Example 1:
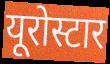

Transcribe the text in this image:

यूरोस्टार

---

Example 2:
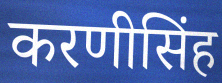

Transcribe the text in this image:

करणीसिंह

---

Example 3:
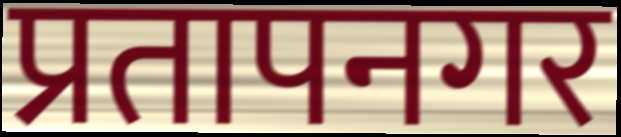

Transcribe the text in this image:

प्रतापनगर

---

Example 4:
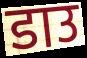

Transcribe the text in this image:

डाउ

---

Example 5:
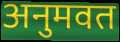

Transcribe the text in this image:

अनुमवत